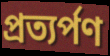
প্ৰত্যৰ্পণ